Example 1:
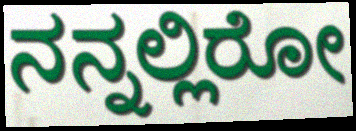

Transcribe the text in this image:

ನನ್ನಲ್ಲಿರೋ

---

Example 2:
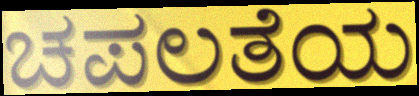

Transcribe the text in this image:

ಚಪಲತೆಯ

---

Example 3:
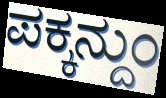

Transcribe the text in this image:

ಪಕ್ಕನ್ದುಂ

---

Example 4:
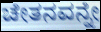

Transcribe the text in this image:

ಚೇತನವನ್ನೇ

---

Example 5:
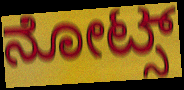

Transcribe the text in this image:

ನೋಟ್ಸ್